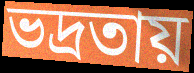
ভদ্রতায়